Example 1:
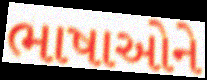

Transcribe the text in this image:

ભાષાઓને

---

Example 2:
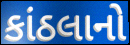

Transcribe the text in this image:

કાંઠલાનો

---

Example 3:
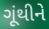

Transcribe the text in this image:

ગૂંથીને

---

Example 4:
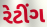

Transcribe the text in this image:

રેટીંગ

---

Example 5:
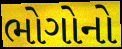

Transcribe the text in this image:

ભોગોનો